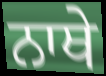
ਨਾਥੇ